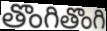
తొంగితొంగి